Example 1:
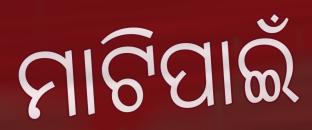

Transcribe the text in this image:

ମାଟିପାଇଁ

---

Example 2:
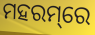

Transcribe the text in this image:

ମହରମ୍‌ରେ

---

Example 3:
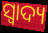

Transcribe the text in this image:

ସ୍ଵାଦ୍ୟ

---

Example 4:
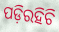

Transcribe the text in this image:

ପଡ଼ିରହିଚି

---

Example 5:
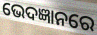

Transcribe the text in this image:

ଭେଦଜ୍ଞାନରେ